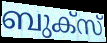
ബുക്സ്